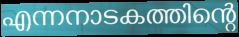
എന്നനാടകത്തിന്റെ